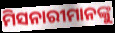
ମିସନାରୀମାନଙ୍କୁ